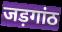
जड़गांठ